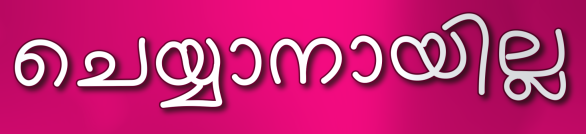
ചെയ്യാനായില്ല